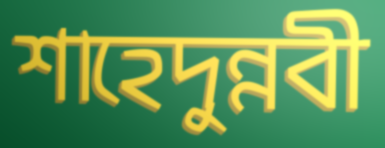
শাহেদুন্নবী